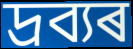
দ্ৰব্যৰ